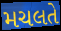
મચલતે